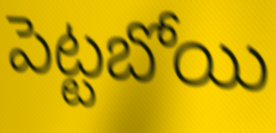
పెట్టబోయి